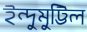
ইন্দুমুট্টিল